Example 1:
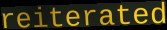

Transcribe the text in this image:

reiterated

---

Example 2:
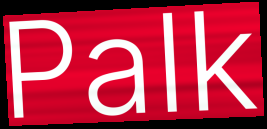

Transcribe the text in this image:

Palk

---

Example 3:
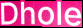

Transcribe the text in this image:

Dhole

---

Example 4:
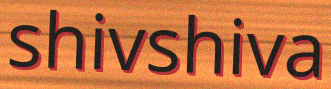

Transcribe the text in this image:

shivshiva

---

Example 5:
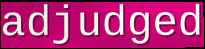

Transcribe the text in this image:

adjudged